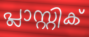
പ്ലാസ്റ്റിക്